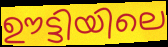
ഊട്ടിയിലെ